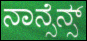
ನಾನ್ಸೆನ್ಸ್